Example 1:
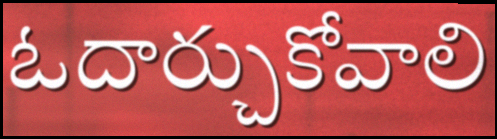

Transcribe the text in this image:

ఓదార్చుకోవాలి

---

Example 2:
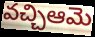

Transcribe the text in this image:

వచ్చిఆమె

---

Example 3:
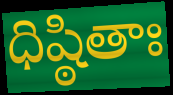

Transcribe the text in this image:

ధిష్ఠితాః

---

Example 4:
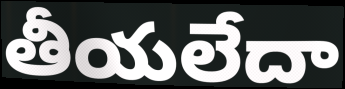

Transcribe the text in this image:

తీయలేదా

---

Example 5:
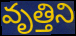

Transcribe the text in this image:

వృత్తిని